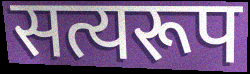
सत्यरूप